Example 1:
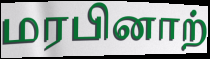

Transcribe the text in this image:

மரபினாற்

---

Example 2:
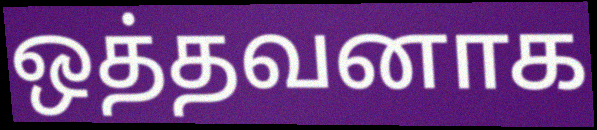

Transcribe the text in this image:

ஒத்தவனாக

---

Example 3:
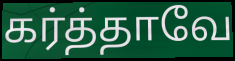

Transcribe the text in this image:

கர்த்தாவே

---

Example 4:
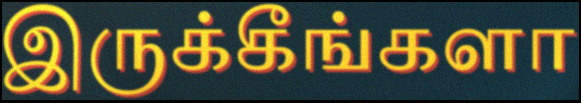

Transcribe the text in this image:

இருக்கீங்களா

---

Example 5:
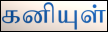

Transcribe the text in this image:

கனியுள்